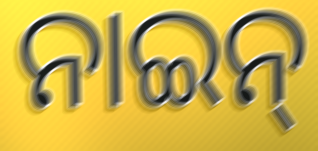
ନାଇନ୍